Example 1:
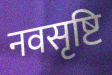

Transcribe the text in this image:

नवसृष्टि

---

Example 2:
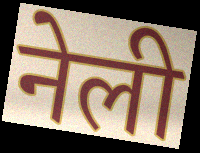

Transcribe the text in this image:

नेली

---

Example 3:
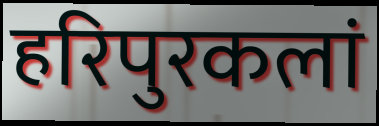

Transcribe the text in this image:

हरिपुरकलां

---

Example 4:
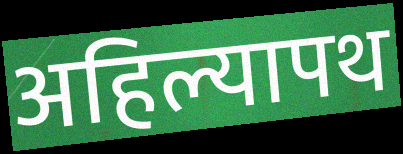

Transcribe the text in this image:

अहिल्यापथ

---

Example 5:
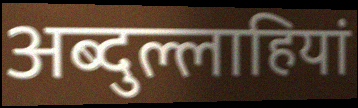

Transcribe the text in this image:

अब्दुल्लाहियां